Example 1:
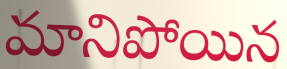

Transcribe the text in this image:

మానిపోయిన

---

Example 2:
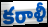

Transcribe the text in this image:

కరాళీ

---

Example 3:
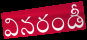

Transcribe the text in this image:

వినరండీ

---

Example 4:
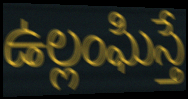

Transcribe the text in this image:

ఉల్లంఘిస్తే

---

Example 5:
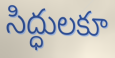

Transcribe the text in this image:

సిద్ధులకూ